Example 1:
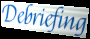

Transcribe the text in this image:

Debriefing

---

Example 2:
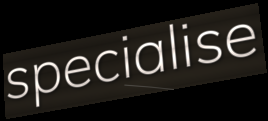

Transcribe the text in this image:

specialise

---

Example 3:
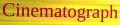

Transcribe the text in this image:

Cinematograph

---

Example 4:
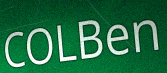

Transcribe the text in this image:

COLBen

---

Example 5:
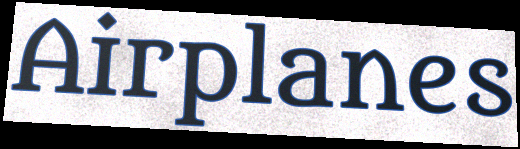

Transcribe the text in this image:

Airplanes